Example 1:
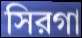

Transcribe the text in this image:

সিরগা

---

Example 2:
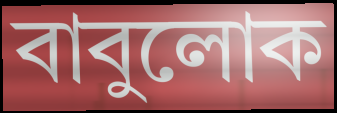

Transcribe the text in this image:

বাবুলোক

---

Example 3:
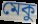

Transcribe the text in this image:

মেকু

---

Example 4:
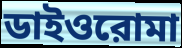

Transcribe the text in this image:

ডাইওরোমা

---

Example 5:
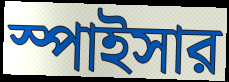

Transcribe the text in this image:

স্পাইসার